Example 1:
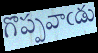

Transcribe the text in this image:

గొప్పవాఁడు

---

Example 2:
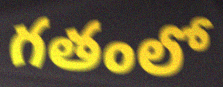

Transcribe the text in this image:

గతంలో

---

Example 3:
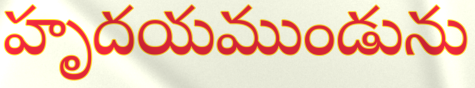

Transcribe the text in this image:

హృదయముండును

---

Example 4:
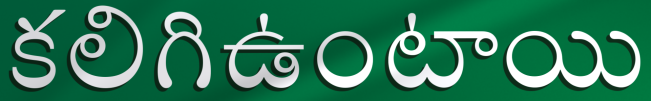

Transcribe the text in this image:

కలిగిఉంటాయి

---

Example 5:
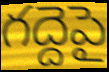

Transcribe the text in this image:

గద్దెపై